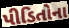
પીડિતોના